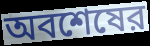
অবশেষের